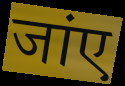
जांए